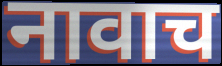
नावाच